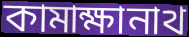
কামাক্ষানাথ